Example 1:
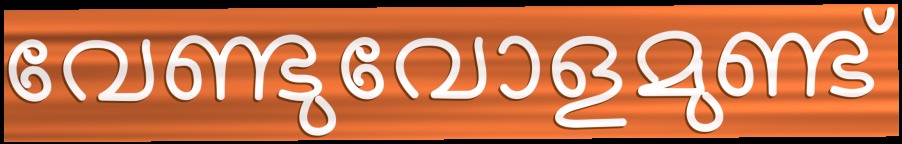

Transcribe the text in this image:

വേണ്ടുവോളമുണ്ട്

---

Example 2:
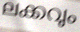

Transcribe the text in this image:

ലക്കവും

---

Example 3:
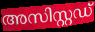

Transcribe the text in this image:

അസിസ്റ്റഡ്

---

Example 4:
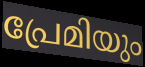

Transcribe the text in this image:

പ്രേമിയും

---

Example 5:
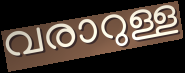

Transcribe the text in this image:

വരാറുള്ള